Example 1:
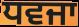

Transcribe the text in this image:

ਧਵਜਾ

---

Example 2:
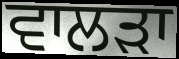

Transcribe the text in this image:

ਵਾਲੜਾ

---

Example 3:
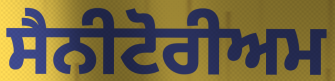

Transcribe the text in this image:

ਸੈਨੀਟੋਰੀਅਮ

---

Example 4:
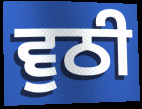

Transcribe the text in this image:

ਵੁਠੀ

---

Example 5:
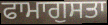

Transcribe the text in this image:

ਫਾਮਾਗੁਸਤਾ